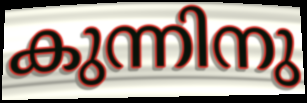
കുന്നിനു